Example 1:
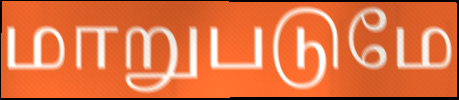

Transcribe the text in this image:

மாறுபடுமே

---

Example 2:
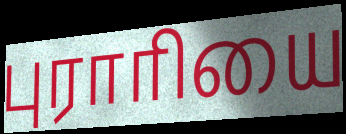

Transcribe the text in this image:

புராரியை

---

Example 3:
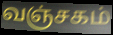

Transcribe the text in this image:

வஞ்சகம்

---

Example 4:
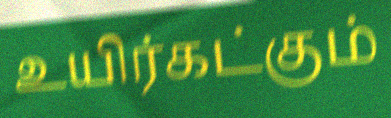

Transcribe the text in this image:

உயிர்கட்கும்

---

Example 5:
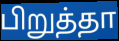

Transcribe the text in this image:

பிறுத்தா